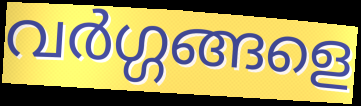
വർഗ്ഗങ്ങളെ